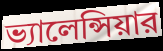
ভ্যালেন্সিয়ার